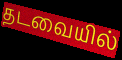
தடவையில்